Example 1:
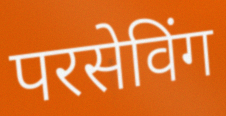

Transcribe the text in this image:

परसेविंग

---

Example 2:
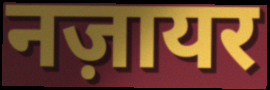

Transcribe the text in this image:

नज़ायर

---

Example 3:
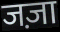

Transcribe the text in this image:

जज़ा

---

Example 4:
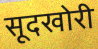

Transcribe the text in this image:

सूदखोरी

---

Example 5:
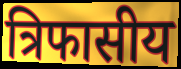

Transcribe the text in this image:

त्रिफासीय